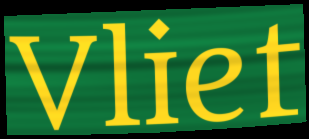
Vliet